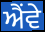
ਐਂਵੇ